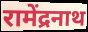
रामेंद्रनाथ